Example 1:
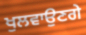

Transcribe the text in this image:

ਖੁਲਵਾਉਣਗੇ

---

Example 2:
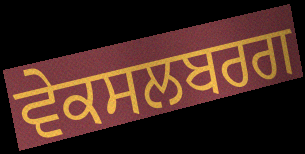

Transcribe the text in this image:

ਵੇਕਸਲਬਰਗ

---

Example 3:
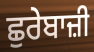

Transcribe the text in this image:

ਛੁਰੇਬਾਜ਼ੀ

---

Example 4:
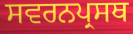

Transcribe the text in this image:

ਸਵਰਨਪ੍ਰਸਥ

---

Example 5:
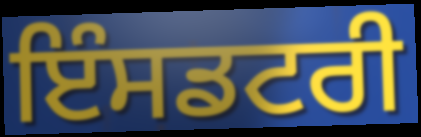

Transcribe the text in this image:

ਇੰਸਡਟਰੀ